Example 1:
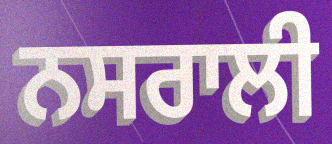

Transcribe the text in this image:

ਨਸਰਾਲੀ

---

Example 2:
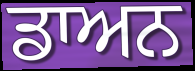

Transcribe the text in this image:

ਡਾਅਨ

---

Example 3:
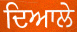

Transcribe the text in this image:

ਦਿਆਲੇ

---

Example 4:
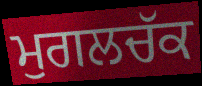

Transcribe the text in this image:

ਮੁਗਲਚੱਕ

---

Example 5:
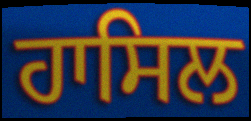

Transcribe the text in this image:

ਹਾਸਿਲ